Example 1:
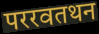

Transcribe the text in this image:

पररवतथन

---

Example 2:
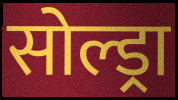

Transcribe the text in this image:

सोल्ड्रा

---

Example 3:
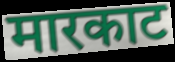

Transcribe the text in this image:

मारकाट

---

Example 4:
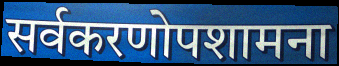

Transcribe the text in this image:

सर्वकरणोपशामना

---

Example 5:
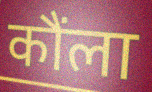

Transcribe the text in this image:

कौंला